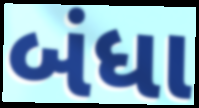
બંધા